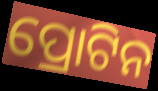
ପ୍ରୋଟିନ